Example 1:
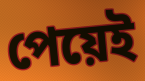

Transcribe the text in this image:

পেয়েই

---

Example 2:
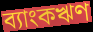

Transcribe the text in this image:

ব্যাংকঋণ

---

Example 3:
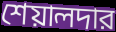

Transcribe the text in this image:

শেয়ালদার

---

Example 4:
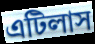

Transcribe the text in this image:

এটিলাস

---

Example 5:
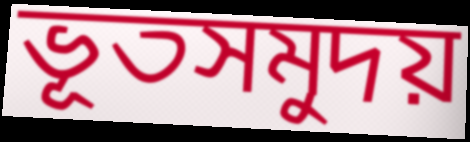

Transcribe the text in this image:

ভূতসমুদয়